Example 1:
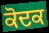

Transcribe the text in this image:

ਕੋਦਕ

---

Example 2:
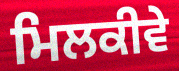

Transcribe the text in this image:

ਮਿਲਕੀਵੇ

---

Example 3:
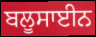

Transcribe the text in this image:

ਬਲੂਸਾਈਨ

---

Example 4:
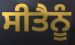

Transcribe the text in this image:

ਸੀਤੈਨੂੰ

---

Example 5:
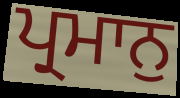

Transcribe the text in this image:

ਪ੍ਰਮਾਨੁ